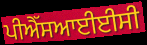
ਪੀਐੱਸਆਈਈਸੀ